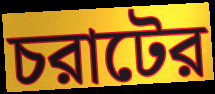
চরাটের